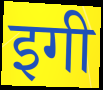
इगी